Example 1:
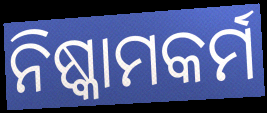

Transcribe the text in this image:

ନିଷ୍କାମକର୍ମ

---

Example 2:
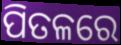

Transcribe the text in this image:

ପିତଳରେ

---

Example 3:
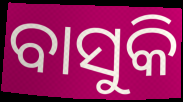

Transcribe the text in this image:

ବାସୁକି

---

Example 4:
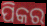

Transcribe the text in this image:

ପିକର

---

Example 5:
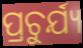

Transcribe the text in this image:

ପ୍ରଚୁର୍ଯ୍ୟ